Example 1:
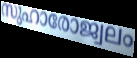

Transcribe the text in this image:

സുഹാരോജ്വലം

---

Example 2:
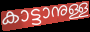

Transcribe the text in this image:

കാട്ടാനുള്ള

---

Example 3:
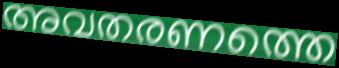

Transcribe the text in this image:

അവതരണത്തെ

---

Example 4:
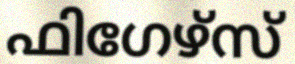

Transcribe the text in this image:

ഫിഗേഴ്സ്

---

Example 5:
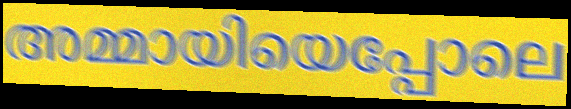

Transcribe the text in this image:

അമ്മായിയെപ്പോലെ